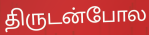
திருடன்போல